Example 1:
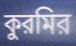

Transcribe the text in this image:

কুরমির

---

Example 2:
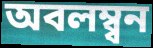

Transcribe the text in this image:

অবলম্ব্বন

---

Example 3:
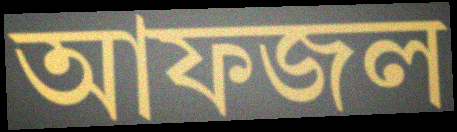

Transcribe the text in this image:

আফজল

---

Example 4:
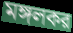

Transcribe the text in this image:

মঙ্গলকর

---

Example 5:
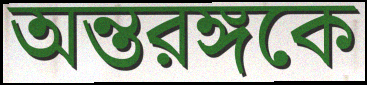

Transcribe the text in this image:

অন্তরঙ্গকে